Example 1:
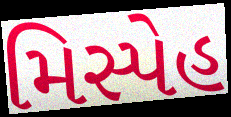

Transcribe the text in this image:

મિસ્પેહ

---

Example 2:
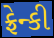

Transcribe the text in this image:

ફ્રેન્કી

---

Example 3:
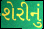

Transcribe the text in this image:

શેરીનું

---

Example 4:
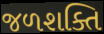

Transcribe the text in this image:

જળશક્તિ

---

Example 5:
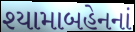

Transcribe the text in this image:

શ્યામાબહેનનાં